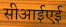
सीआईएई